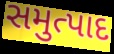
સમુત્પાદ